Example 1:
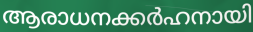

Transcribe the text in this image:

ആരാധനക്കർഹനായി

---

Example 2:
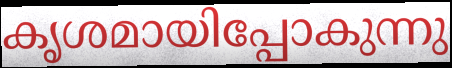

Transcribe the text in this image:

കൃശമായിപ്പോകുന്നു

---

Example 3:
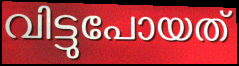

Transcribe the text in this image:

വിട്ടുപോയത്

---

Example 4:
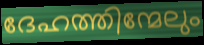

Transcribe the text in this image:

ദേഹത്തിന്മേലും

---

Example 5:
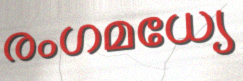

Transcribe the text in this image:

രംഗമധ്യേ